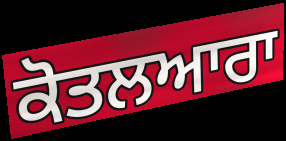
ਕੋਤਲਆਰਾ